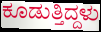
ಕೂಡುತ್ತಿದ್ದಳು